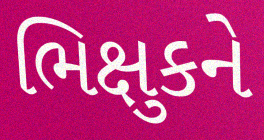
ભિક્ષુકને